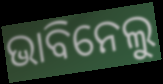
ଭାବିନେଲୁ